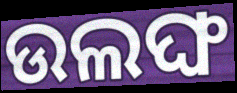
ଉଲଙ୍ଘ